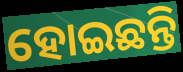
ହୋଇଛନ୍ତି